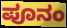
ಪೂನಂ